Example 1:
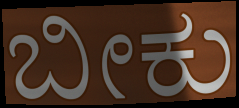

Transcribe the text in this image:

ಬೀಕು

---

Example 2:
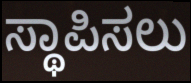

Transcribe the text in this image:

ಸ್ಥಾಪಿಸಲು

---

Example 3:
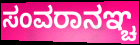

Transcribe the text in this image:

ಸಂವರಾನಞ್ಚ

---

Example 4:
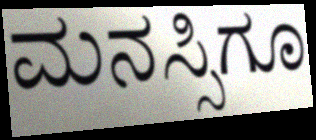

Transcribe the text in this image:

ಮನಸ್ಸಿಗೂ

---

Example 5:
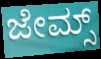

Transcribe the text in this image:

ಜೇಮ್ಸ್